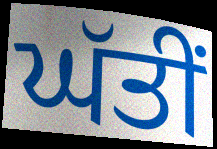
ਘੱਤੀਂ